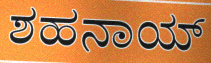
ಶಹನಾಯ್